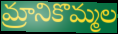
మ్రానికొమ్మల